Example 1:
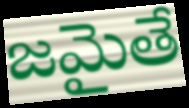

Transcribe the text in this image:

జమైతే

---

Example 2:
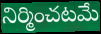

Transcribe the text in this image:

నిర్మించటమే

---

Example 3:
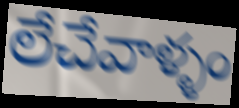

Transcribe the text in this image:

లేచేవాళ్ళం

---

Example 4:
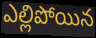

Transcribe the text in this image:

ఎల్లిపోయిన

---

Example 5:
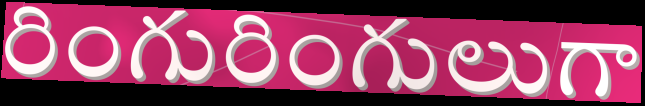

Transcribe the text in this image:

రింగురింగులుగా